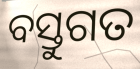
ବସ୍ତୁଗତ